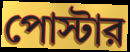
পোস্টার